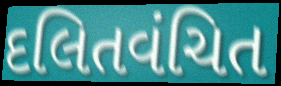
દલિતવંચિત